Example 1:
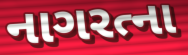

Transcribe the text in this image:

નાગરત્ના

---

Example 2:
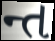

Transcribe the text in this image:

ન્ત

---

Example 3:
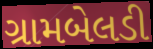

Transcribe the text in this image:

ગ્રામબેલડી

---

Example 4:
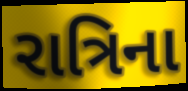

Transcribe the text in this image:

રાત્રિના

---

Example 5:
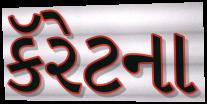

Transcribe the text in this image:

કૅરેટના